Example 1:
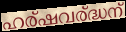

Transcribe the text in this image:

ഹര്ഷവര്ദ്ധന്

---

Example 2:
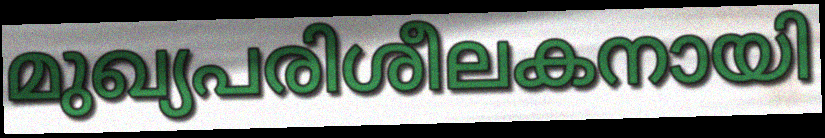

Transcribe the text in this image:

മുഖ്യപരിശീലകനായി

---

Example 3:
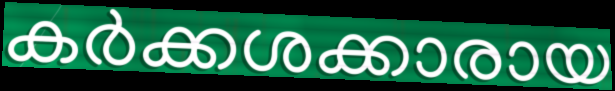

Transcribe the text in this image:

കർക്കശക്കാരായ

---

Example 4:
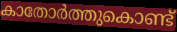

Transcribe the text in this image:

കാതോർത്തുകൊണ്ട്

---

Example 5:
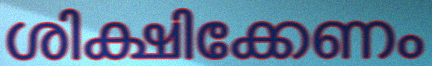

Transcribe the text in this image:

ശിക്ഷിക്കേണം